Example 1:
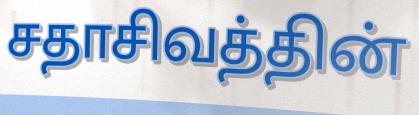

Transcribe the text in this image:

சதாசிவத்தின்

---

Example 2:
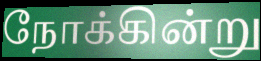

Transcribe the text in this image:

நோக்கின்று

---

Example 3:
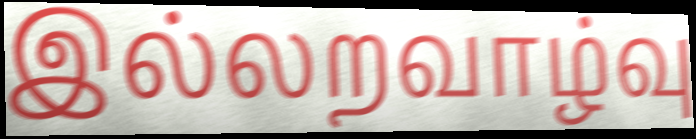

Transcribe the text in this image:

இல்லறவாழ்வு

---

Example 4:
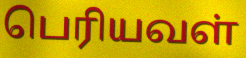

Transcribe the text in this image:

பெரியவள்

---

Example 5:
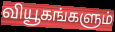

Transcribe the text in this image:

வியூகங்களும்